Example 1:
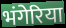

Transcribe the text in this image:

भंगेरिया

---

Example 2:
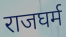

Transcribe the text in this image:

राजघर्म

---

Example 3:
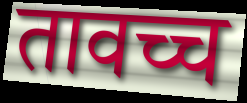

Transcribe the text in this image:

तावच्च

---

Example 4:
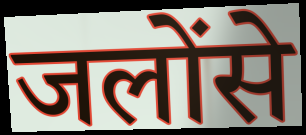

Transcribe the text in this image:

जलोंसे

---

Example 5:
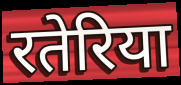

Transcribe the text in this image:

रतेरिया